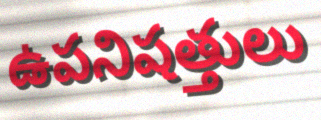
ఉపనిషత్తులు